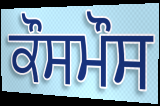
ਕੌਸਮੌਸ